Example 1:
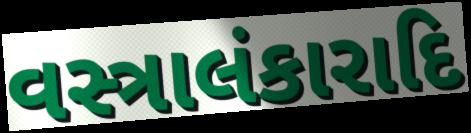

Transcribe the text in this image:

વસ્ત્રાલંકારાદિ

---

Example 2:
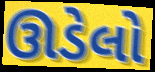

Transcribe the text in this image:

ઊડેલો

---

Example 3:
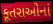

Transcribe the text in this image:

કૂતરાઓનાં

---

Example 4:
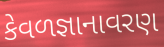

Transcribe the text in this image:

કેવળજ્ઞાનાવરણ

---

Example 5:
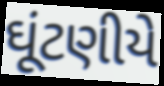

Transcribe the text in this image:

ઘૂંટણીયે